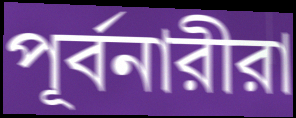
পূর্বনারীরা